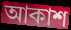
আকাশ